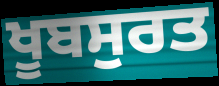
ਖੂਬਸੁਰਤ